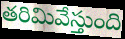
తరిమివేస్తుంది